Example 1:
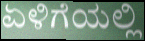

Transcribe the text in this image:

ಏಳಿಗೆಯಲ್ಲಿ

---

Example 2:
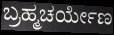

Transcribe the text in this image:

ಬ್ರಹ್ಮಚರ್ಯೇಣ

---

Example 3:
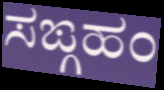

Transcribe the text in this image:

ಸಙ್ಗಹಂ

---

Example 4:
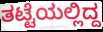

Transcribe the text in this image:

ತಟ್ಟೆಯಲ್ಲಿದ್ದ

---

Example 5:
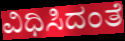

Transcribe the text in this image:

ವಿಧಿಸಿದಂತೆ